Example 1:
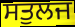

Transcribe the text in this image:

ਸਤੁਲਜ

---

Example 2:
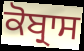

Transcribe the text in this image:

ਕੋਬ੍ਰਾਸ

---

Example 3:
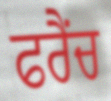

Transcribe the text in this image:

ਫਰੈਂਚ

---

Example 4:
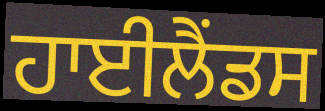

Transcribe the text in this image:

ਹਾਈਲੈਂਡਸ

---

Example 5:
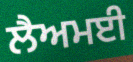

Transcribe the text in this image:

ਲੈਅਮਈ